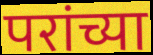
परांच्या